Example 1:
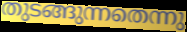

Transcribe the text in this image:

തുടങ്ങുന്നതെന്നു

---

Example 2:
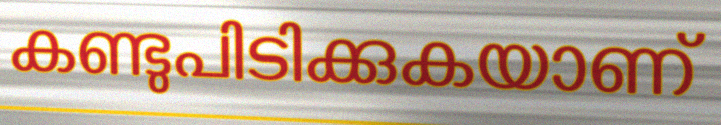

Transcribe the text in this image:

കണ്ടുപിടിക്കുകയാണ്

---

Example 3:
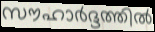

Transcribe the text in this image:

സൗഹാർദ്ദത്തിൽ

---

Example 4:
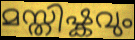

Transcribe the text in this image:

മസ്തിഷ്കവും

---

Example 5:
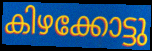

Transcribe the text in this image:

കിഴക്കോട്ടു